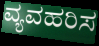
ವ್ಯವಹರಿಸ